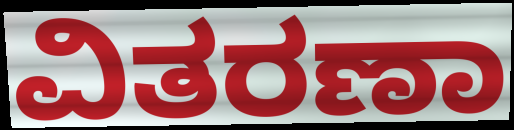
ವಿತರಣಾ